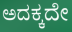
ಅದಕ್ಕದೇ